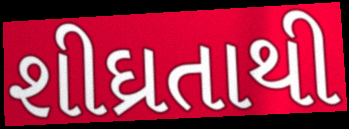
શીઘ્રતાથી